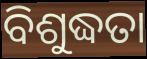
ବିଶୁଦ୍ଧତା